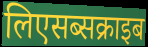
लिएसब्सक्राइब